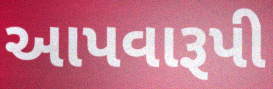
આપવારૂપી